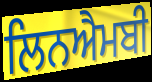
ਲਿਨਐਮਬੀ